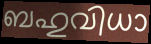
ബഹുവിധാ